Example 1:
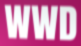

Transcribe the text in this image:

WWD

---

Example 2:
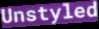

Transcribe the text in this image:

Unstyled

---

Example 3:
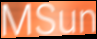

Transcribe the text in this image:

MSun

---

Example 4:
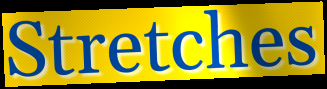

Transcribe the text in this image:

Stretches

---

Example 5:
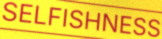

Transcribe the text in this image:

SELFISHNESS